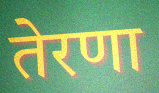
तेरणा